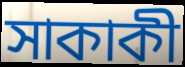
সাকাকী